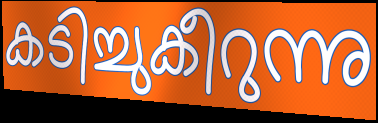
കടിച്ചുകീറുന്നു